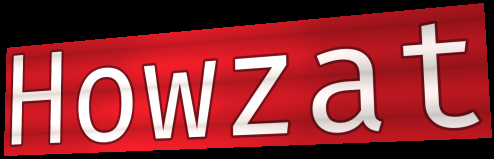
Howzat